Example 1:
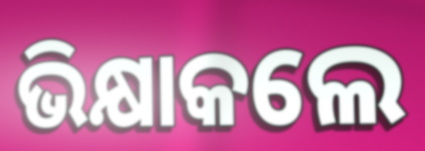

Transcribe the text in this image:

ଭିକ୍ଷାକଲେ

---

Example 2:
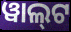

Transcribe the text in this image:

ୱାଲ୍‌ଟ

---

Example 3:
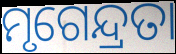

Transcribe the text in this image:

ମୃଗେନ୍ଦ୍ରତା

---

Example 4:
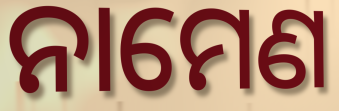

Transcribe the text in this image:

ନାମେଣ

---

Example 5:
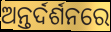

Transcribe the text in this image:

ଅନ୍ତର୍ଦର୍ଶନରେ